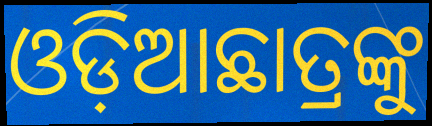
ଓଡ଼ିଆଛାତ୍ରଙ୍କୁ